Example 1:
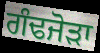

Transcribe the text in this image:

ਗੰਢਜੋੜਾ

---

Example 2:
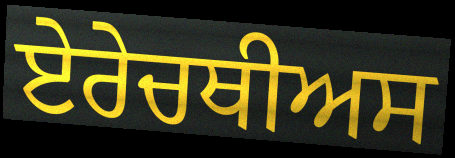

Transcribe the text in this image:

ਏਰੇਚਥੀਅਸ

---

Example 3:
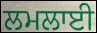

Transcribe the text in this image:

ਲਮਲਾਈ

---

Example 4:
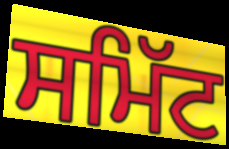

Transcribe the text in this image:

ਸਮਿੱਟ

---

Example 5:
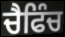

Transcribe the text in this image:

ਚੈਫਿੰਚ